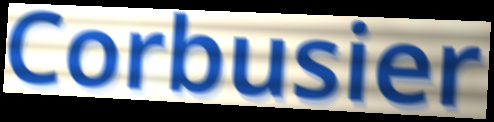
Corbusier